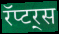
रॅप्टर्स